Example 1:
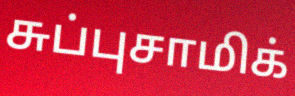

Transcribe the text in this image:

சுப்புசாமிக்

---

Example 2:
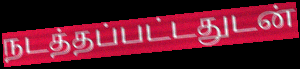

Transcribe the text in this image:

நடத்தப்பட்டதுடன்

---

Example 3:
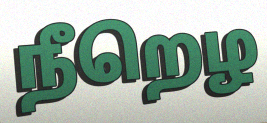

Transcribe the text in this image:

நீறெழ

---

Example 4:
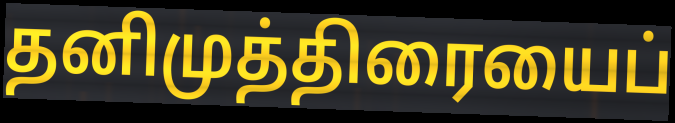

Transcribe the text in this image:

தனிமுத்திரையைப்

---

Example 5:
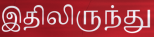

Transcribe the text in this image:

இதிலிருந்து